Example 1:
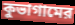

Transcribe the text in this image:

কুভাগামের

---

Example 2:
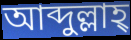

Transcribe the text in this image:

আব্দুল্লাহ্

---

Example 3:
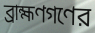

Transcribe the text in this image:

ব্রাহ্মণগণের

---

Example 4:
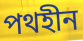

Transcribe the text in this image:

পথহীন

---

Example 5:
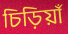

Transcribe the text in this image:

চিড়িয়াঁ